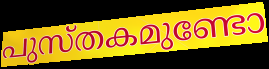
പുസ്തകമുണ്ടോ